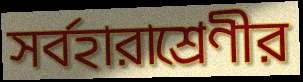
সর্বহারাশ্রেণীর